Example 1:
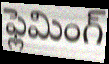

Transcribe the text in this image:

ఫ్లెమింగ్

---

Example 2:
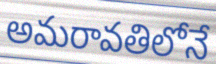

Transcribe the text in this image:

అమరావతిలోనే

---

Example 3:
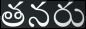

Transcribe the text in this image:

తనరు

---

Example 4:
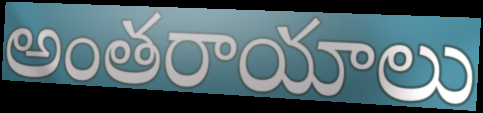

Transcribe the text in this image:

అంతరాయాలు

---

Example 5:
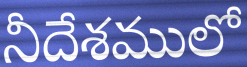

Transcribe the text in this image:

నీదేశములో